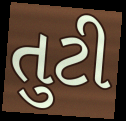
તુટી